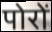
पोरों